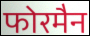
फोरमैन